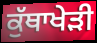
ਕੁੱਥਾਖੇੜੀ